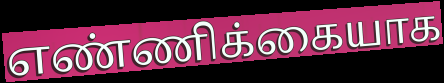
எண்ணிக்கையாக